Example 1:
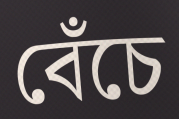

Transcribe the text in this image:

বেঁচে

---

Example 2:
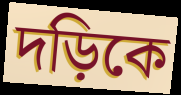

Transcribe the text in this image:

দড়িকে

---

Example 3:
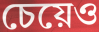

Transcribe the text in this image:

চেয়েও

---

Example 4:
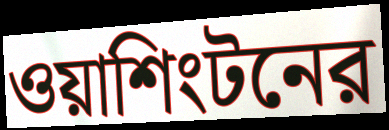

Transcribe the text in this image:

ওয়াশিংটনের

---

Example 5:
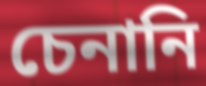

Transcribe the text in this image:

চেনানি